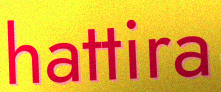
hattira